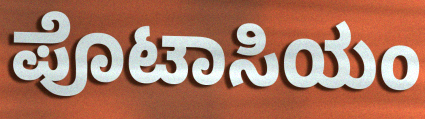
ಪೊಟಾಸಿಯಂ